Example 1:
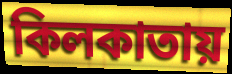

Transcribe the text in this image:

কিলকাতায়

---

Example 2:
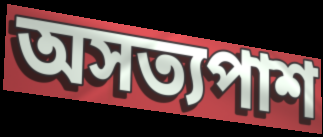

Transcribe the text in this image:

অসত্যপাশ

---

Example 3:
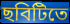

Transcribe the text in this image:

ছবিটিতে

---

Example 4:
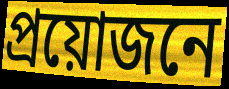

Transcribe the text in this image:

প্রয়োজনে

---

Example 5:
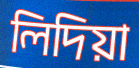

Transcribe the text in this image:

লিদিয়া